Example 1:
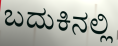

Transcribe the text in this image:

ಬದುಕಿನಲ್ಲಿ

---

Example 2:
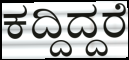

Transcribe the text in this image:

ಕದ್ದಿದ್ದರೆ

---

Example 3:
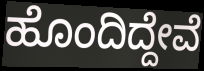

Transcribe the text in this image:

ಹೊಂದಿದ್ದೇವೆ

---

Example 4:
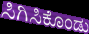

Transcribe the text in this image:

ಸಿಗಿಸಿಕೊಂಡು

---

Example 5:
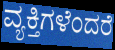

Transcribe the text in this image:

ವ್ಯಕ್ತಿಗಳೆಂದರೆ